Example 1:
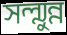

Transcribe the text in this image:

সল্মুন্ন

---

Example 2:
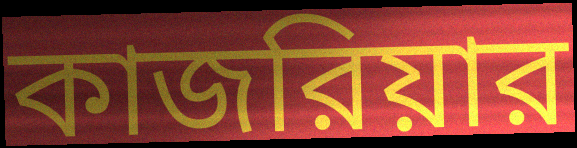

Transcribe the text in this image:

কাজরিয়ার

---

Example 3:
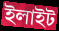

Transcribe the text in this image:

ইলাইট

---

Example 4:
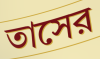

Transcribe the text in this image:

তাসের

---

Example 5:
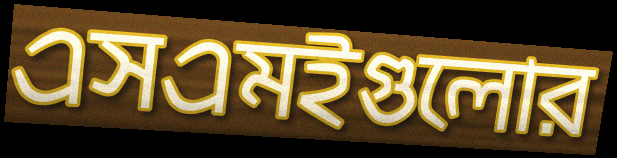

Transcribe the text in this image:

এসএমইগুলোর